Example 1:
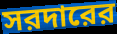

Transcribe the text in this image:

সরদারের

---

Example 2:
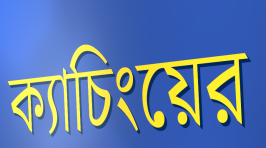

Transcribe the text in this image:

ক্যাচিংয়ের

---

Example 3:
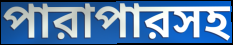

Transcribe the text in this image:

পারাপারসহ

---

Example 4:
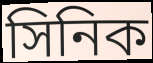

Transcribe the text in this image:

সিনিক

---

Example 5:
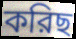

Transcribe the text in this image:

করিছ